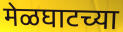
मेळघाटच्या